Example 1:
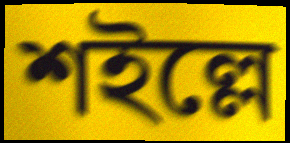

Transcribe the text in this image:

শইল্লে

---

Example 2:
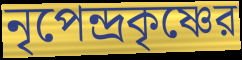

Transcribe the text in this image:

নৃপেন্দ্রকৃষ্ণের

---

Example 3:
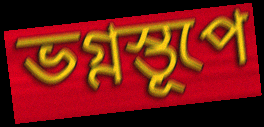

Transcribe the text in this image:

ভগ্নস্তূপে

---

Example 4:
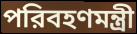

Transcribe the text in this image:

পরিবহণমন্ত্রী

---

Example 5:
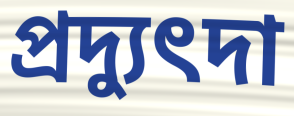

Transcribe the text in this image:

প্রদ্যুৎদা